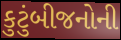
કુટુંબીજનોની